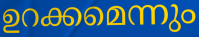
ഉറക്കമെന്നും